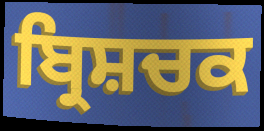
ਬ੍ਰਿਸ਼ਚਕ